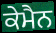
ਕੇਮੈਨ